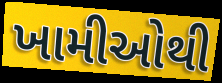
ખામીઓથી